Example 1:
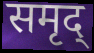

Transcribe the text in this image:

समृद्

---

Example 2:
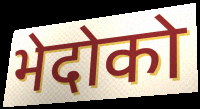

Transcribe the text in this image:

भेदोको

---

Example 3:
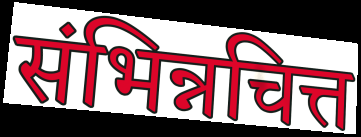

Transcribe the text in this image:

संभिन्नचित्त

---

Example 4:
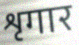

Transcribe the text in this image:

शृगार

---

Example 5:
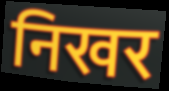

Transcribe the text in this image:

निखर